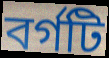
বর্গটি